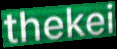
thekei